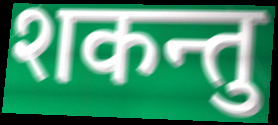
शकन्तु